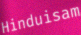
Hinduisam